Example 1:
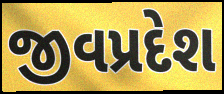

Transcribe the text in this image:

જીવપ્રદેશ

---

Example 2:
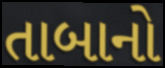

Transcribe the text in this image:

તાબાનો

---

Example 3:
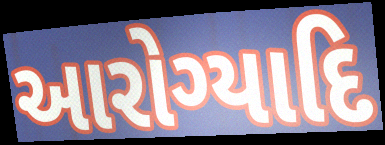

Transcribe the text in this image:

આરોગ્યાદિ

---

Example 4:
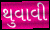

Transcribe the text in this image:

થુવાવી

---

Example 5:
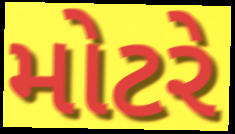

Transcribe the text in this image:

મોટરે